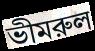
ভীমরুল